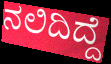
ನಲಿದಿದ್ದೆ